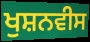
ਖੁਸ਼ਨਵੀਸ